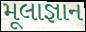
મૂલાજ્ઞાન